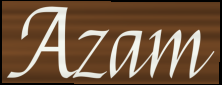
Azam